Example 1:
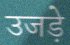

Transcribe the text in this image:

उजड़े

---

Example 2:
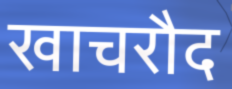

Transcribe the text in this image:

खाचरौद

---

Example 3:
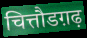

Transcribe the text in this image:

चित्तौडग़ढ़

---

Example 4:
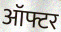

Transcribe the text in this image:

ऑफ्टर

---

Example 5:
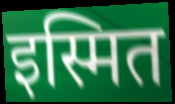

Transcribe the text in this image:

इस्मित